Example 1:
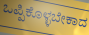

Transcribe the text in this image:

ಒಪ್ಪಿಕೊಳ್ಳಬೇಕಾದ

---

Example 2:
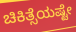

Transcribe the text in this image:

ಚಿಕಿತ್ಸೆಯಷ್ಟೇ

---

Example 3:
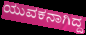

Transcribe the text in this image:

ಯುವಕನಾಗಿದ್ದ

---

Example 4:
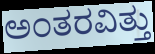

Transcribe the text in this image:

ಅಂತರವಿತ್ತು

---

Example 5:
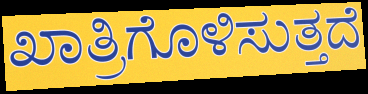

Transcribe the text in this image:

ಖಾತ್ರಿಗೊಳಿಸುತ್ತದೆ